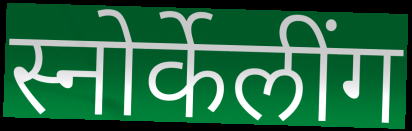
स्नोर्केलींग